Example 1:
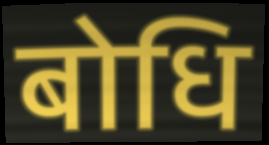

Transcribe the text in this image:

बोधि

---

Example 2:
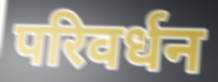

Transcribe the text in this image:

परिवर्धन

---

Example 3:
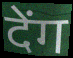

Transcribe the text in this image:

देंग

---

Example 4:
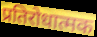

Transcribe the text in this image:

प्रतिरोधात्मक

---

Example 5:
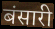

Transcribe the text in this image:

बंसारी